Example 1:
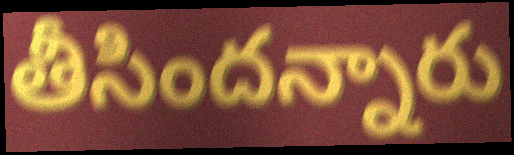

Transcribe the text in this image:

తీసిందన్నారు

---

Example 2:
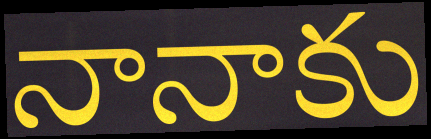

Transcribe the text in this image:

నానాకు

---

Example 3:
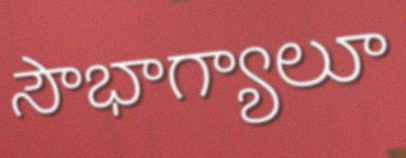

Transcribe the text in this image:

సౌభాగ్యాలూ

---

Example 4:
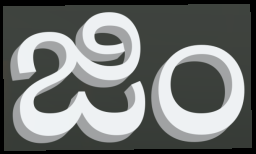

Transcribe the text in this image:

జిం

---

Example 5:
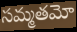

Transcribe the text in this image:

సమ్మతమో